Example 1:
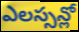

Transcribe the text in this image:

ఎలస్సన్లో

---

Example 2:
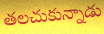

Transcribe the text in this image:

తలచుకున్నాడు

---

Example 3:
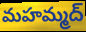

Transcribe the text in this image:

మహమ్మద్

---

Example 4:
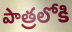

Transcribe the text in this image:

పాత్రలోకి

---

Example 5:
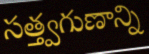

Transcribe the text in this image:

సత్త్వగుణాన్ని